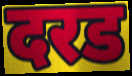
दरड